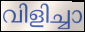
വിളിച്ചാ